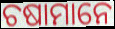
ଚଷାମାନେ